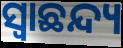
ସ୍ୱାଛନ୍ଦ୍ୟ